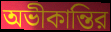
অভীকান্তির